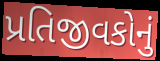
પ્રતિજીવકોનું